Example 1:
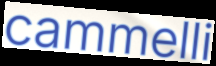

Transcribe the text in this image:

cammelli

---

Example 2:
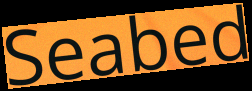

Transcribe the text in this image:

Seabed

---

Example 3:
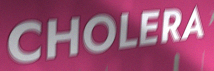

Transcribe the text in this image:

CHOLERA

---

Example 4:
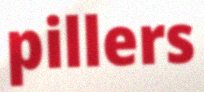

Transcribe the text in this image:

pillers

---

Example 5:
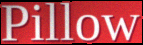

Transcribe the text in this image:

Pillow